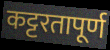
कट्टरतापूर्ण